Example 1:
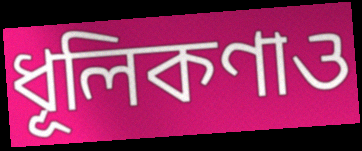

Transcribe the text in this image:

ধূলিকণাও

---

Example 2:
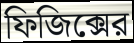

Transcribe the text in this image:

ফিজিক্সের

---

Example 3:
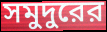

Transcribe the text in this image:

সমুদুরের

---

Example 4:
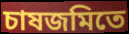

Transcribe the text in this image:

চাষজমিতে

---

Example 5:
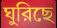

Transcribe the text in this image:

ঘুরিছে